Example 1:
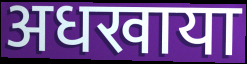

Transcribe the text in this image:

अधखाया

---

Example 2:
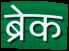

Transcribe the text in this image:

ब्रेक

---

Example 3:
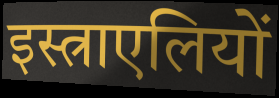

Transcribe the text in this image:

इस्त्राएलियों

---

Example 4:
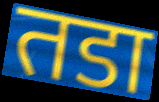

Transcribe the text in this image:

तडा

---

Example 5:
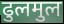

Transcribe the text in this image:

ढुलमुल